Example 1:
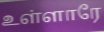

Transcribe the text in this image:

உள்ளாரே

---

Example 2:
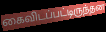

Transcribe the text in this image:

கைவிடப்பட்டிருந்தன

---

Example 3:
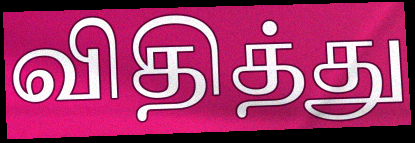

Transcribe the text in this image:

விதித்து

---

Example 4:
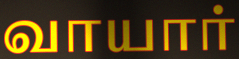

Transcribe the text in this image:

வாயார்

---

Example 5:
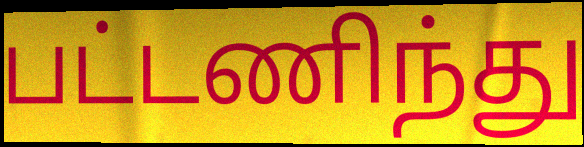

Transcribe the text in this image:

பட்டணிந்து